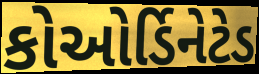
કોઓર્ડિનેટેડ